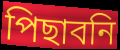
পিছাবনি